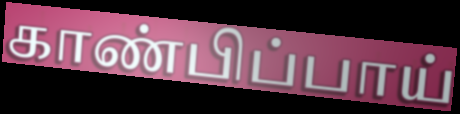
காண்பிப்பாய்